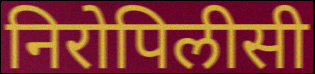
निरोपिलीसी